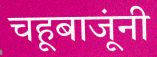
चहूबाजूंनी